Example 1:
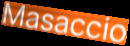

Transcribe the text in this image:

Masaccio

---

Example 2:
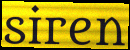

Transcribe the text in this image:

siren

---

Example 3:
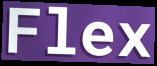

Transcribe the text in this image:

Flex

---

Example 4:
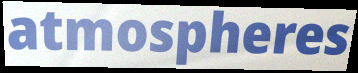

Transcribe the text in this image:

atmospheres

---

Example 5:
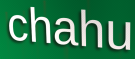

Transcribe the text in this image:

chahu